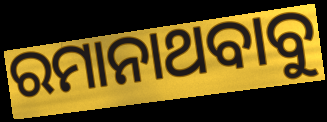
ରମାନାଥବାବୁ